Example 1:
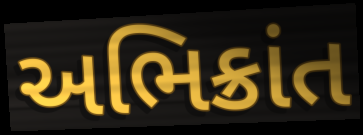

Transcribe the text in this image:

અભિક્રાંત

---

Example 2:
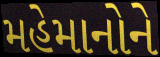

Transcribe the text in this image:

મહેમાનોને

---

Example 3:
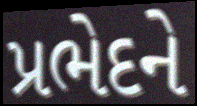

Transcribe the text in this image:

પ્રભેદને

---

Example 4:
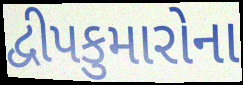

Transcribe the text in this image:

દ્વીપકુમારોના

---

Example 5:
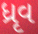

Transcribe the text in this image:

ધ્રૃવ